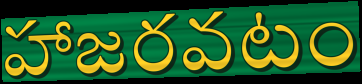
హాజరవటం